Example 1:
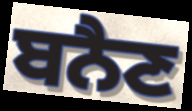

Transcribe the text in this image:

ਬਨੈਣ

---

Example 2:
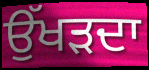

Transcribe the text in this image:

ਉੱਖੜਦਾ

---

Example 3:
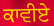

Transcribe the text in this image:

ਕਾਵੀਏ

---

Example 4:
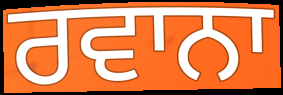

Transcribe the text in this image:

ਰਵਾਨਾ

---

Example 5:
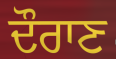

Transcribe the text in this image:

ਦੌਰਾਣ